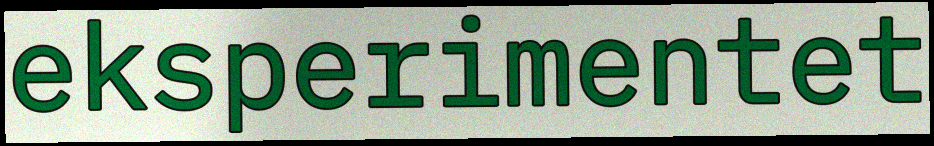
eksperimentet